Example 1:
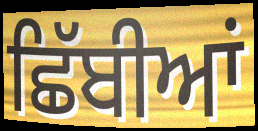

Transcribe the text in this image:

ਛਿੱਬੀਆਂ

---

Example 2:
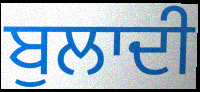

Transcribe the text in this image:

ਬੁਲਾਦੀ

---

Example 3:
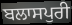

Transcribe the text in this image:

ਬਲਾਸਪੁਰੀ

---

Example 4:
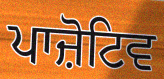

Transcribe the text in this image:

ਪਾਜ਼ੋਟਿਵ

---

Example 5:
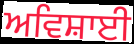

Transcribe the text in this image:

ਅਵਿਸ਼ਾਈ